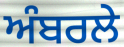
ਅੰਬਰਲੇ